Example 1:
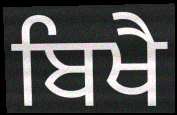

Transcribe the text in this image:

ਬਿਖੈ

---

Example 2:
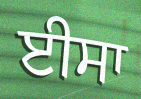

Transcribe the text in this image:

ਈਸਾ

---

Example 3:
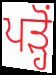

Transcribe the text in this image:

ਪੜ੍ਹੋਂ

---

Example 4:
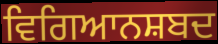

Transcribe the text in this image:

ਵਿਗਿਆਨਸ਼ਬਦ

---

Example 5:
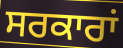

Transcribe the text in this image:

ਸਰਕਾਰਾਂ